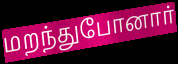
மறந்துபோனார்